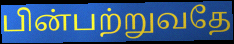
பின்பற்றுவதே